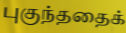
புகுந்ததைக்